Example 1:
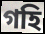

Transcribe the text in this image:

গহি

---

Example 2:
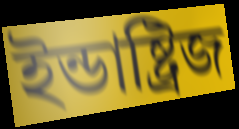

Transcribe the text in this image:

ইন্ডাষ্ট্রিজ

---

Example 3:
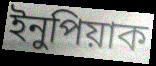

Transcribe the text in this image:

ইনুপিয়াক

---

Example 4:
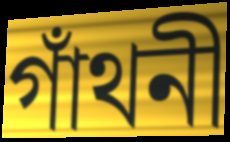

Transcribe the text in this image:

গাঁথনী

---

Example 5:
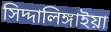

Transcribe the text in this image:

সিদ্দালিঙ্গাইয়া